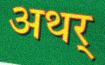
अथर्